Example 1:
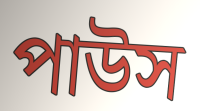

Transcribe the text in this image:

পাউস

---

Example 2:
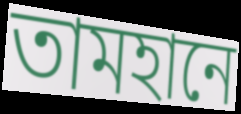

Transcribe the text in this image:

তামহানে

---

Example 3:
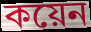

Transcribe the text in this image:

কয়েন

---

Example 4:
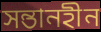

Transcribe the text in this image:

সন্তানহীন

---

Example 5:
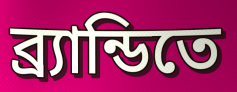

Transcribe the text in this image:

ব্র্যান্ডিতে